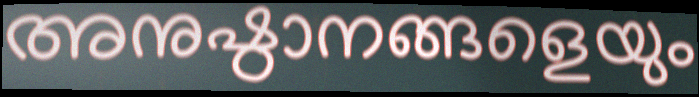
അനുഷ്ഠാനങ്ങളെയും